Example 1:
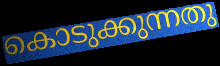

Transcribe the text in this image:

കൊടുക്കുന്നതു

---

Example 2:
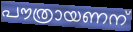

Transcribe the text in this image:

പൗത്രായണന്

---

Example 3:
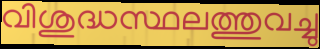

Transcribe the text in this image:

വിശുദ്ധസ്ഥലത്തുവച്ചു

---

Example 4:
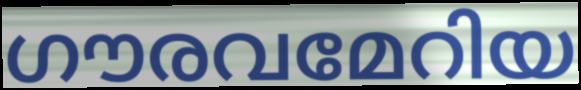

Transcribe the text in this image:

ഗൗരവമേറിയ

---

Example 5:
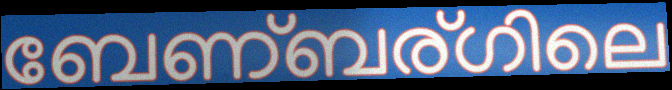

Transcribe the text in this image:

ബേണ്ബര്ഗിലെ